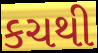
કચથી